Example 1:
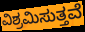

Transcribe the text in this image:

ವಿಶ್ರಮಿಸುತ್ತವೆ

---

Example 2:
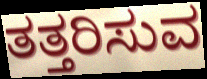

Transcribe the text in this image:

ತತ್ತರಿಸುವ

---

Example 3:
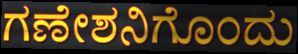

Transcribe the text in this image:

ಗಣೇಶನಿಗೊಂದು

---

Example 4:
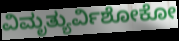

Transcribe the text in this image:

ವಿಮೃತ್ಯುರ್ವಿಶೋಕೋ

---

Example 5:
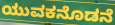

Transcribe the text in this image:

ಯುವಕನೊಡನೆ